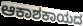
ಆಕಾಶಕಾಯದ